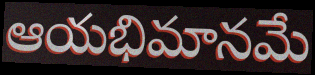
ఆయభిమానమే